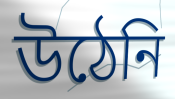
উঠেনি